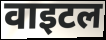
वाइटल